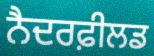
ਨੈਦਰਫ਼ੀਲਡ